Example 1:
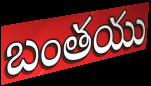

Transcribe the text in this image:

బంతయు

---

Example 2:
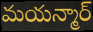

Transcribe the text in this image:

మయన్మార్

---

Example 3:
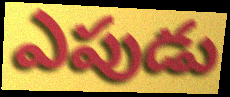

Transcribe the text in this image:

ఎపుడు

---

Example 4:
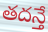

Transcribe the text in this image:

తదన్తే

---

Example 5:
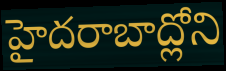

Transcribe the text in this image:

హైదరాబాద్లోని